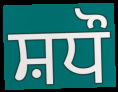
ਸ਼ਧੌ